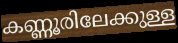
കണ്ണൂരിലേക്കുള്ള